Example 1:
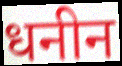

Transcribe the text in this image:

धनीन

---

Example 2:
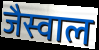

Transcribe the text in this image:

जैस्वाल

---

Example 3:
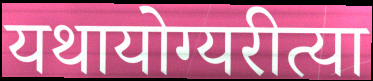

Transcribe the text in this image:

यथायोग्यरीत्या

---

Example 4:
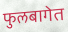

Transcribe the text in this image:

फुलबागेत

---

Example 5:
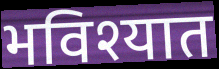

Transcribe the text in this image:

भविश्यात